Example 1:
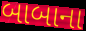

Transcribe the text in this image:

બાબાના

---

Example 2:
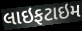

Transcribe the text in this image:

લાઇફટાઇમ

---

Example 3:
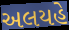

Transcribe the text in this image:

અલયહે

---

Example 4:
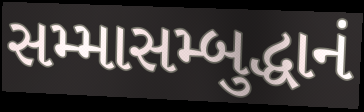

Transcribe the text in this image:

સમ્માસમ્બુદ્ધાનં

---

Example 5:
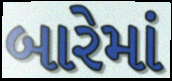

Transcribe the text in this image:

બારેમાં